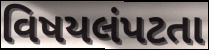
વિષયલંપટતા